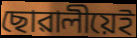
ছোৱালীয়েই